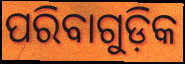
ପରିବାଗୁଡ଼ିକ